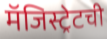
मॅजिस्ट्रेटची